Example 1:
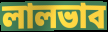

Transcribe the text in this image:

লালভাব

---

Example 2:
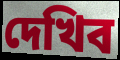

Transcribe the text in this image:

দেখিব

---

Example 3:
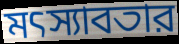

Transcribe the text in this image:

মৎস্যাবতার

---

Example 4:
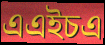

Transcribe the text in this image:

এএইচএ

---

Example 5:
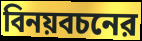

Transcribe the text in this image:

বিনয়বচনের